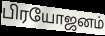
பிரயோஜனம்